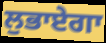
ਲੁਭਾਏਗਾ